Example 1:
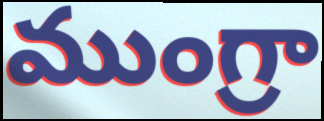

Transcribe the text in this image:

ముంగ్రా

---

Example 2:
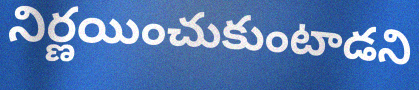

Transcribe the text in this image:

నిర్ణయించుకుంటాడని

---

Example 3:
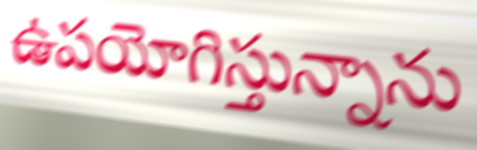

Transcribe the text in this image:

ఉపయోగిస్తున్నాను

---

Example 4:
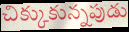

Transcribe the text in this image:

చిక్కుకున్నపుడు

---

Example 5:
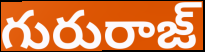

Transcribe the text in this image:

గురురాజ్